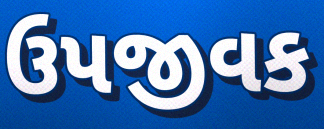
ઉપજીવક